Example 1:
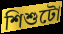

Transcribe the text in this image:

শিশুটো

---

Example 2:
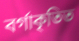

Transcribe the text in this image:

বৰ্গাকৃতিত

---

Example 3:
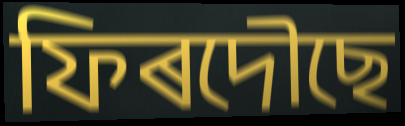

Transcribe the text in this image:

ফিৰদৌছে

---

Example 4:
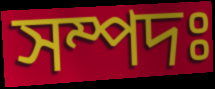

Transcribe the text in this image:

সম্পদঃ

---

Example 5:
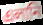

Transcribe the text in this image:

এলানি